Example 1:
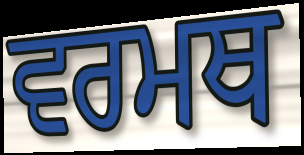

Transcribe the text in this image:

ਵਰਮਥ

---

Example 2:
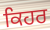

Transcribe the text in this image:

ਕਿਹਰ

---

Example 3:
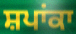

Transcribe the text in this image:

ਸ਼ਪਾਂਕਾ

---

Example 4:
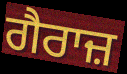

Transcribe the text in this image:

ਗੈਰਾਜ਼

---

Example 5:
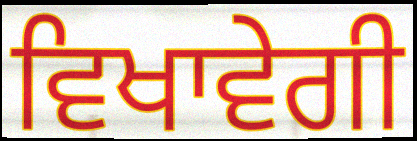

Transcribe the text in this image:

ਵਿਖਾਵੇਗੀ